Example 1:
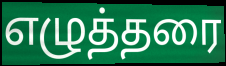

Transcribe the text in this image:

எழுத்தரை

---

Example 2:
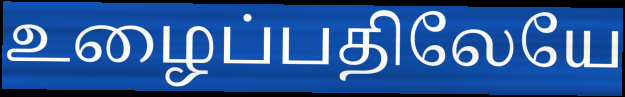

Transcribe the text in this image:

உழைப்பதிலேயே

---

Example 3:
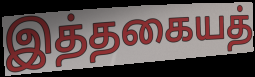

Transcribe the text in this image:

இத்தகையத்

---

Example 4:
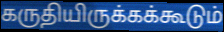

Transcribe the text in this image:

கருதியிருக்கக்கூடும்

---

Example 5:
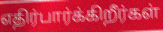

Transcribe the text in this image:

எதிர்பார்க்கிறீர்கள்